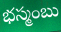
భస్మంబు